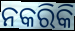
ନକରିକି